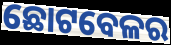
ଛୋଟବେଳର